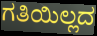
ಗತಿಯಿಲ್ಲದ